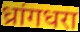
ध्रांगधरा